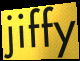
jiffy